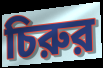
চিরুর